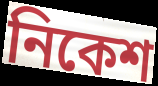
নিকেশ